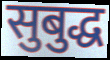
सुबुद्ध